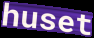
huset